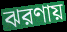
ঝরণায়